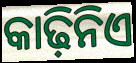
କାଢ଼ିନିଏ